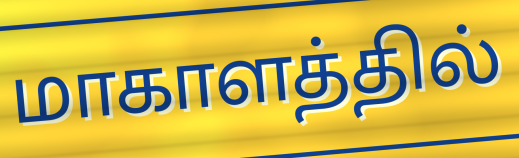
மாகாளத்தில்